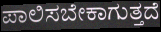
ಪಾಲಿಸಬೇಕಾಗುತ್ತದೆ